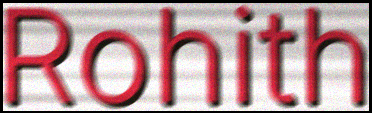
Rohith